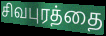
சிவபுரத்தை